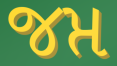
જપ્ત